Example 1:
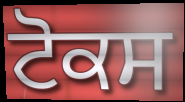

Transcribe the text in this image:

ਟੋਕਸ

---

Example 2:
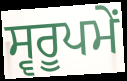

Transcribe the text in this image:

ਸ੍ਵਰੂਪਮੇਂ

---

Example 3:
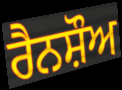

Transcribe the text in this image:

ਰੈਨਸ਼ੌਅ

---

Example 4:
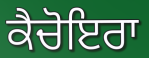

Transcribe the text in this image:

ਕੈਚੋਇਰਾ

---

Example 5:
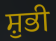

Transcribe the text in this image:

ਸ਼ੁਭੀ